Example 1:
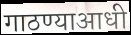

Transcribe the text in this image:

गाठण्याआधी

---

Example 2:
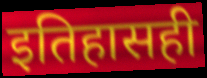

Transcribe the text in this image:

इतिहासही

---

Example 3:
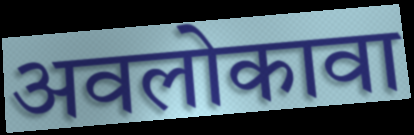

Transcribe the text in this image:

अवलोकावा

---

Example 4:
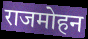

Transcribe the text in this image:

राजमोहन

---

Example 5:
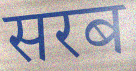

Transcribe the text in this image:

सरब